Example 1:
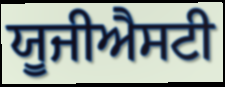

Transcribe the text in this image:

ਯੂਜੀਐਸਟੀ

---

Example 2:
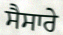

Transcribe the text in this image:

ਸੈਸਾਰੇ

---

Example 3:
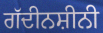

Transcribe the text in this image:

ਗੱਦੀਨਸ਼ੀਨੀ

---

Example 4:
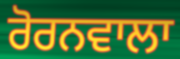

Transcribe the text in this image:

ਰੋਰਨਵਾਲਾ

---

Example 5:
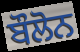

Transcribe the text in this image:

ਬੌਲੋਨ